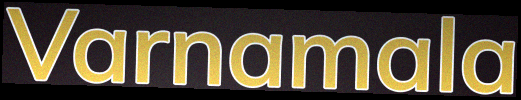
Varnamala